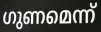
ഗുണമെന്ന്